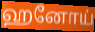
ஹனோய்